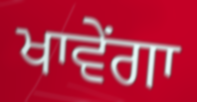
ਖਾਵੇਂਗਾ